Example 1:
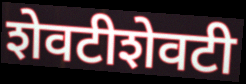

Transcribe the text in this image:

शेवटीशेवटी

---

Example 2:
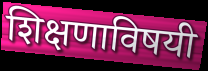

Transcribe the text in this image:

शिक्षणाविषयी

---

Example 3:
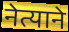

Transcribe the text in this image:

नेत्याने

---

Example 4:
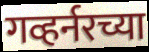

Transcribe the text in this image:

गव्हर्नरच्या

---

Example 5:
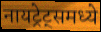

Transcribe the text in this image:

नायट्रेट्समध्ये